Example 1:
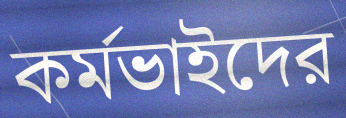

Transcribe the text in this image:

কর্মভাইদের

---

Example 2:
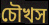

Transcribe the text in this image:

চৌখস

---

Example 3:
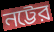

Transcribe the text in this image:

নট্টের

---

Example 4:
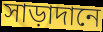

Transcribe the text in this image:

সাড়াদানে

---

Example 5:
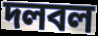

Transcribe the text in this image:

দলবল